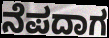
ನೆಪದಾಗ